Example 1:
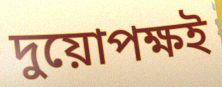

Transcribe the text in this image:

দুয়োপক্ষই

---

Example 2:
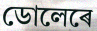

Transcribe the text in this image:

ডোলেৰে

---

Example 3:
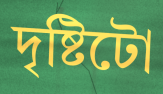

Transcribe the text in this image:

দৃষ্টিটো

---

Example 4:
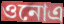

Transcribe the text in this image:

ওনোএ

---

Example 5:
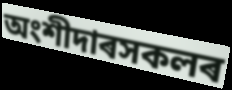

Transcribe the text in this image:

অংশীদাৰসকলৰ